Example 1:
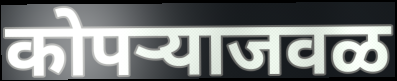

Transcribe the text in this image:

कोपऱ्याजवळ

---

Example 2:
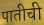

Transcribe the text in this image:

पातीची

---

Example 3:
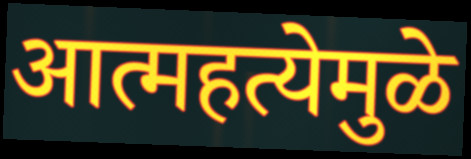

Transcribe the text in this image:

आत्महत्येमुळे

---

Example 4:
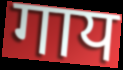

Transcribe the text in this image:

गाय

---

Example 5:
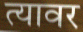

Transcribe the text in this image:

त्‍यावर